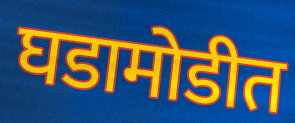
घडामोडीत